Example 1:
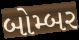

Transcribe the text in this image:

બોમ્બર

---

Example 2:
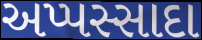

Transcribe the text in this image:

અપ્પસ્સાદા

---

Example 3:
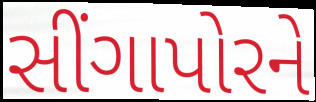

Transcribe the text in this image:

સીંગાપોરને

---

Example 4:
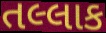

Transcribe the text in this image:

તલ્લાક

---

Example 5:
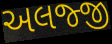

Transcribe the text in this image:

અલજ્જી